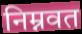
निम्नवत